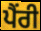
ਪੈਂਰੀ